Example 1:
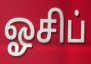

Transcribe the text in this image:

ஓசிப்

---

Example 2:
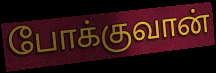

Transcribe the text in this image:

போக்குவான்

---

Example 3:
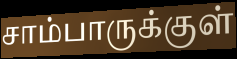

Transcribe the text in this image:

சாம்பாருக்குள்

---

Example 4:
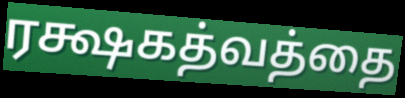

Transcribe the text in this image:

ரக்ஷகத்வத்தை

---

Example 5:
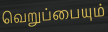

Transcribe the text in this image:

வெறுப்பையும்